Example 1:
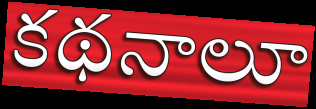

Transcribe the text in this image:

కథనాలూ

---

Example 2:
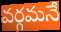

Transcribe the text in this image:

వర్గమనే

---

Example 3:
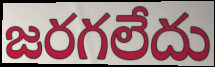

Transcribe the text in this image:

జరగలేదు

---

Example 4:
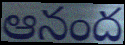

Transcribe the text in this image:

ఆనంద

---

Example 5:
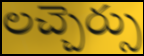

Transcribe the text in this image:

లచ్చెర్సు